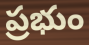
ప్రభుం